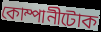
কোম্পানীটোক